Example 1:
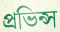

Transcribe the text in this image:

প্ৰভিন্স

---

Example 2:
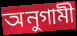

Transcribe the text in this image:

অনুগামী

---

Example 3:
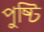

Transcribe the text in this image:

পুষ্টি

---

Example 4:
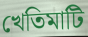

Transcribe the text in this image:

খেতিমাটি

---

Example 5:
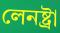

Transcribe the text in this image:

লেনষ্ট্ৰা